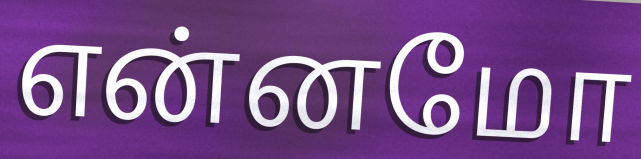
என்னமோ